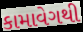
કામાવેગથી